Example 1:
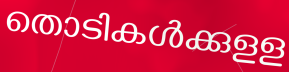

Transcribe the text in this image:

തൊടികൾക്കുളള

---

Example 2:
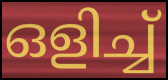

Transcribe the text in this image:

ഒളിച്ച്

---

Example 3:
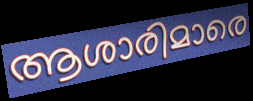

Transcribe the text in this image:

ആശാരിമാരെ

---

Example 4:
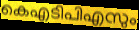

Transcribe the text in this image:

കെഎടിപിഎസും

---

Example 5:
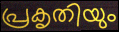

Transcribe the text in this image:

പ്രകൃതിയും